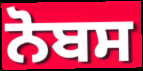
ਨੋਬਸ